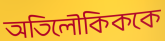
অতিলৌকিককে